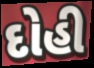
દોહી